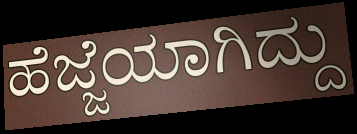
ಹೆಜ್ಜೆಯಾಗಿದ್ದು